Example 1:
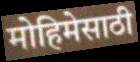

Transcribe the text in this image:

मोहिमेसाठी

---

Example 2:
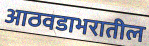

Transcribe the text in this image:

आठवडाभरातील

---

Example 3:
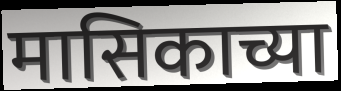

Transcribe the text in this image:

मासिकाच्या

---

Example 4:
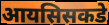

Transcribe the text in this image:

आयसिसकडे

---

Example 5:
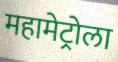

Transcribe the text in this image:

महामेट्रोला